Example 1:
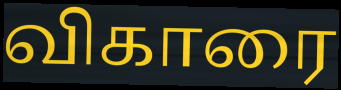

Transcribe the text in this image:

விகாரை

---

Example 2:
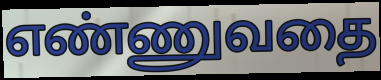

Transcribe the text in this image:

எண்ணுவதை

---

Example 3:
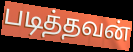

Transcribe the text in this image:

படித்தவன்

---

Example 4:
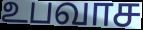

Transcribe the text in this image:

உபவாச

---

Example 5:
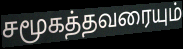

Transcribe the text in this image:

சமூகத்தவரையும்